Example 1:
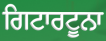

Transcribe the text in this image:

ਗਿਟਾਰਟੂਨਾ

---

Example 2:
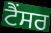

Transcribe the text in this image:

ਟੈਂਸਰ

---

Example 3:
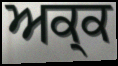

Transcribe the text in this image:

ਅਕ੍ਕ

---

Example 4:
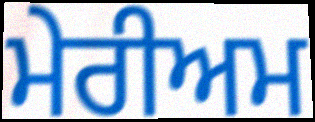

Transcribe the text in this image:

ਮੇਰੀਅਮ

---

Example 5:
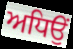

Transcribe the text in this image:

ਅਧਿਉਂ